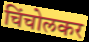
चिंचोलकर